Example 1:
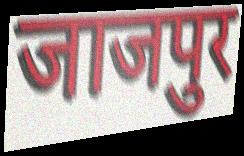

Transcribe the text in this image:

जाजपुर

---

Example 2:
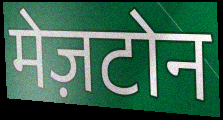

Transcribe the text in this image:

मेज़टोन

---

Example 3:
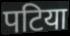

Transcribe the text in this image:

पटिया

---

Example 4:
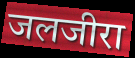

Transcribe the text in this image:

जलजीरा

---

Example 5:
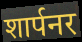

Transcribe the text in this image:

शार्पनर